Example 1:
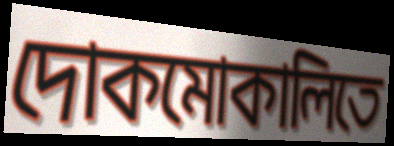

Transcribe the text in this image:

দোকমোকালিতে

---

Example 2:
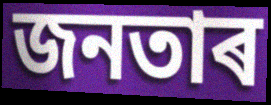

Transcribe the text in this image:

জনতাৰ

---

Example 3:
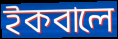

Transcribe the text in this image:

ইকবালে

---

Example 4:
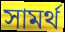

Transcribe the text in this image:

সামৰ্থ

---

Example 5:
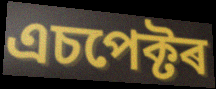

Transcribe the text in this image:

এচপেক্টৰ